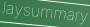
laysummary